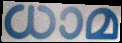
ധാമ